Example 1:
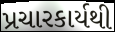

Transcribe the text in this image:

પ્રચારકાર્યથી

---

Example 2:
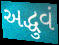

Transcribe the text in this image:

અદ્ધુવં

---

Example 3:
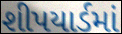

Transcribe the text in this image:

શીપયાર્ડમાં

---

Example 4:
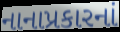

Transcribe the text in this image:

નાનાપ્રકારનાં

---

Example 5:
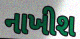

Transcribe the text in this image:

નાખીશ